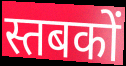
स्तबकों